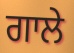
ਗਾਲੇ